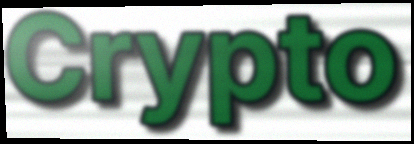
Crypto